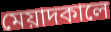
মেয়াদকালে